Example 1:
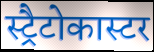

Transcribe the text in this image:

स्ट्रैटोकास्टर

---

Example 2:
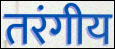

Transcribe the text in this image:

तरंगीय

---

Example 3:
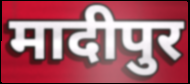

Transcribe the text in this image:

मादीपुर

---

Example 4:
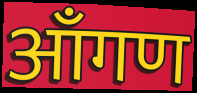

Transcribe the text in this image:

आँगण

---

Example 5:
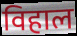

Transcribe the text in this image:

विहाल